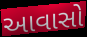
આવાસો